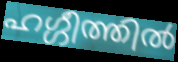
ഹഗ്ഗീത്തിൽ